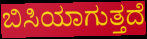
ಬಿಸಿಯಾಗುತ್ತದೆ